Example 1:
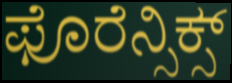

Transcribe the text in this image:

ಫೊರೆನ್ಸಿಕ್ಸ್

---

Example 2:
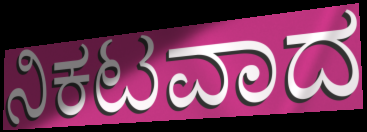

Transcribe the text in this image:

ನಿಕಟವಾದ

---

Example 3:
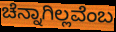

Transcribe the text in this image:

ಚೆನ್ನಾಗಿಲ್ಲವೆಂಬ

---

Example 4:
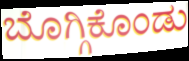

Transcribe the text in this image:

ಬೊಗ್ಗಿಕೊಂಡು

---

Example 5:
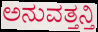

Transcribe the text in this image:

ಅನುವತ್ತನ್ತಿ